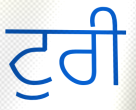
ਟੁਰੀ